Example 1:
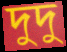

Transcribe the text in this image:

দুদু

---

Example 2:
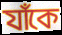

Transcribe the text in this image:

যাঁকে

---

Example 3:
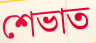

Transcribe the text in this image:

শেভাত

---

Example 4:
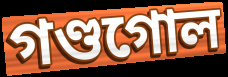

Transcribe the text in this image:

গণ্ডগোল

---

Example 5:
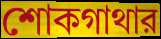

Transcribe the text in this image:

শোকগাথার